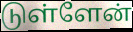
டுள்ளேன்